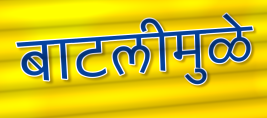
बाटलीमुळे